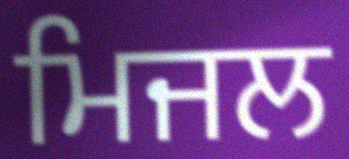
ਮਿਜਲ